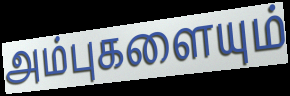
அம்புகளையும்